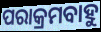
ପରାକ୍ରମବାହୁ